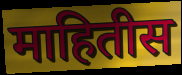
माहितीस